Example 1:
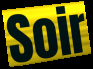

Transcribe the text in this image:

Soir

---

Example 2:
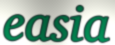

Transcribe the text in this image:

easia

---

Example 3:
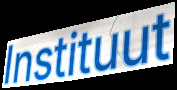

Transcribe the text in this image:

Instituut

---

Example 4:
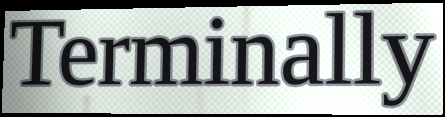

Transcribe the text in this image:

Terminally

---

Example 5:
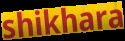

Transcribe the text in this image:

shikhara